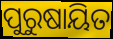
ପୁରୁଷାୟିତ